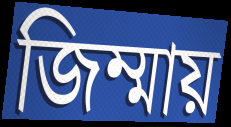
জিম্মায়